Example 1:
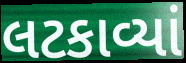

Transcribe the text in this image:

લટકાવ્યાં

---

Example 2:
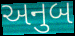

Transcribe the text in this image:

અનુબ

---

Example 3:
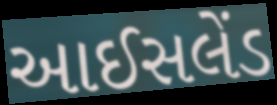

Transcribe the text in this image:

આઈસલેંડ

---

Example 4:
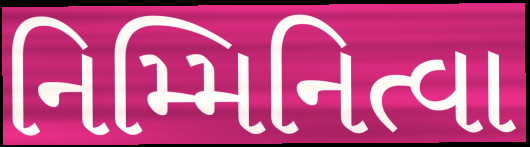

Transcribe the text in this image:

નિમ્મિનિત્વા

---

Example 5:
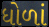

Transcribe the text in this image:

ધોળાં